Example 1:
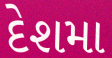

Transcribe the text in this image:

દેશમા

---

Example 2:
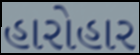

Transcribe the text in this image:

હારોહાર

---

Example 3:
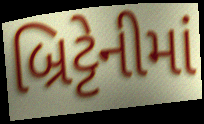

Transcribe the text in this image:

બ્રિટ્ટેનીમાં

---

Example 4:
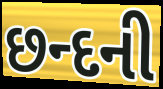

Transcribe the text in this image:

છન્દની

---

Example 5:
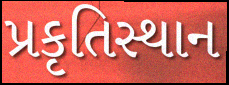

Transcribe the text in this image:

પ્રકૃતિસ્થાન